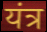
यंत्र